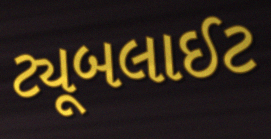
ટ્યૂબલાઈટ